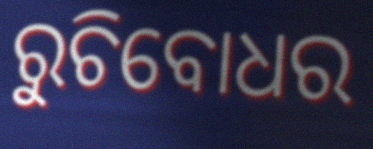
ରୁଚିବୋଧର